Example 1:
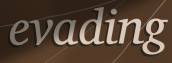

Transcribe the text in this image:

evading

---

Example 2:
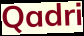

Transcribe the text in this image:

Qadri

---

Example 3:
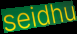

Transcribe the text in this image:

seidhu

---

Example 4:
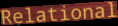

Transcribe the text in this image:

Relational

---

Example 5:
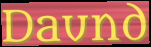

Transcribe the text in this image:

Daund